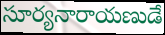
సూర్యనారాయణుడే